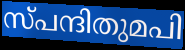
സ്പന്ദിതുമപി